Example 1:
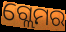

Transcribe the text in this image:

ଗ୍ଲେମର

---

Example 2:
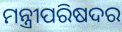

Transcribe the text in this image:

ମନ୍ତ୍ରୀପରିଷଦର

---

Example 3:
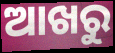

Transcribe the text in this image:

ଆଖରୁ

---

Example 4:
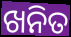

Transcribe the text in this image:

ଖନିତ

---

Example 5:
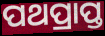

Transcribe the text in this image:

ପଥପ୍ରାପ୍ତ